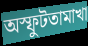
অস্ফুটতামাখা